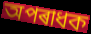
অপৰাধক